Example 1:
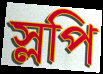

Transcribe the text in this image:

স্লপি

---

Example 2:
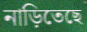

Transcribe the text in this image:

নাড়িতেছে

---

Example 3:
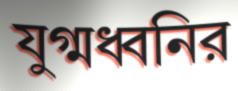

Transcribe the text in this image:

যুগ্মধ্বনির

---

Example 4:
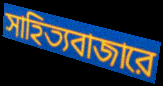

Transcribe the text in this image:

সাহিত্যবাজারে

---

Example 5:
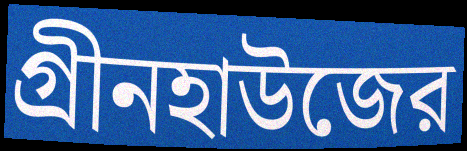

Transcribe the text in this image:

গ্রীনহাউজের